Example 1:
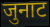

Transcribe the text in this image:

जुनाट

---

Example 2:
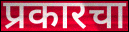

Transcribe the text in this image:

प्रकारचा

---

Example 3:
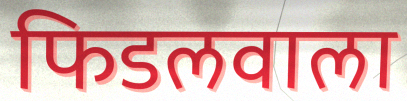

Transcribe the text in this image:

फिडलवाला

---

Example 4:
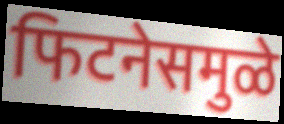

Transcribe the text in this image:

फिटनेसमुळे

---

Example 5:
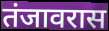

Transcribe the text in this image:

तंजावरास